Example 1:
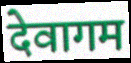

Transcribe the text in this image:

देवागम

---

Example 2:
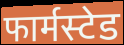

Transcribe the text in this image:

फार्मस्टेड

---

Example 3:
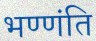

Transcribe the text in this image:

भण्णंति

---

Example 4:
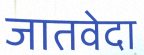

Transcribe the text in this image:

जातवेदा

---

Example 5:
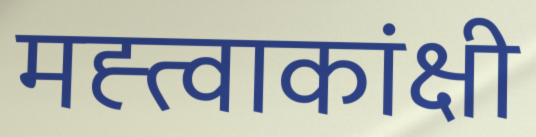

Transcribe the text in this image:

मह्त्वाकांक्षी